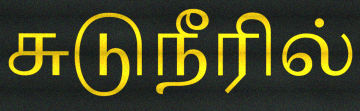
சுடுநீரில்